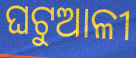
ଘଟୁଆଳୀ